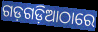
ଗଡ଼ଗଡ଼ିଆଠାରେ